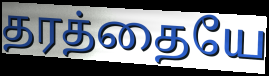
தரத்தையே